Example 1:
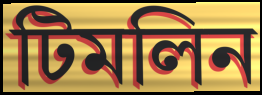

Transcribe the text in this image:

টিমলিন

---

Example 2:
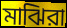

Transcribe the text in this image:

মাঝিরা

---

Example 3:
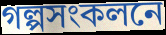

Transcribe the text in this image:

গল্পসংকলনে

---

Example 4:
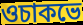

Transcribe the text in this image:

ওচাকভে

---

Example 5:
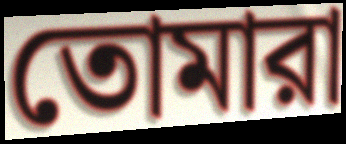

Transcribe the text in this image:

তোমারা